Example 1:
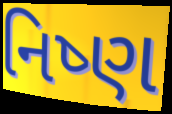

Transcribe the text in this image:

નિષ્ણ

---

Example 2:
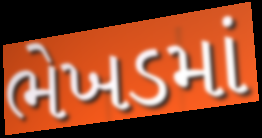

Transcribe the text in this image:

ભેખડમાં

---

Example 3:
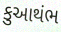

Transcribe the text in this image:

કુઆથંભ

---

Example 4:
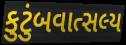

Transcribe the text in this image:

કુટુંબવાત્સલ્ય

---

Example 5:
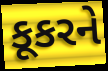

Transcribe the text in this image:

કૂકરને